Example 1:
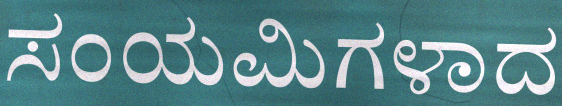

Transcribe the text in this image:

ಸಂಯಮಿಗಳಾದ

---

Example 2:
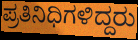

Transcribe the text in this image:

ಪ್ರತಿನಿಧಿಗಳಿದ್ದರು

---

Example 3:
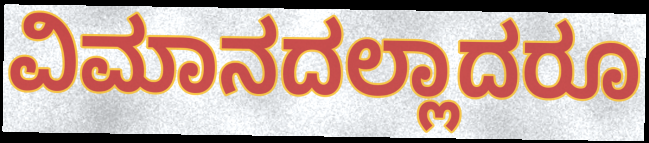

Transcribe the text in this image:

ವಿಮಾನದಲ್ಲಾದರೂ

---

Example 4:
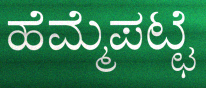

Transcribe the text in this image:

ಹೆಮ್ಮೆಪಟ್ಟೆ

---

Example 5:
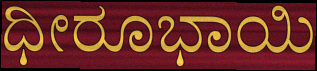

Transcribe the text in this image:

ಧೀರೂಭಾಯಿ